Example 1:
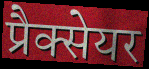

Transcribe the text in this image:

प्रैक्सेयर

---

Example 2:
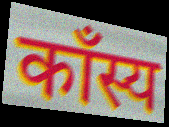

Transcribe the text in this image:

काँस्य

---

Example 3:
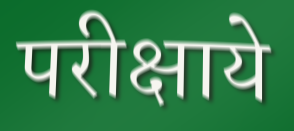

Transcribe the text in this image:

परीक्षाये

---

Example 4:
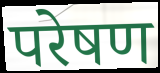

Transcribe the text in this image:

परेषण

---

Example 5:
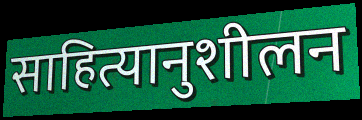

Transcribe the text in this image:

साहित्यानुशीलन